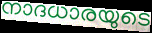
നാദധാരയുടെ